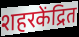
शहरकेंद्रित